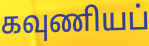
கவுணியப்